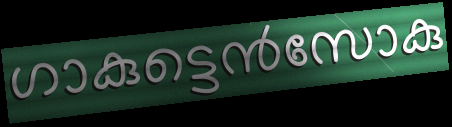
ഗാകുട്ടെൻസോകു